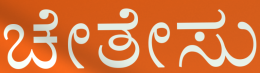
ಚೇತೇಸು